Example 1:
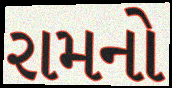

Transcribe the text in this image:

રામનો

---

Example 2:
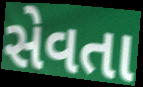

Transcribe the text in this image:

સેવતા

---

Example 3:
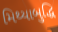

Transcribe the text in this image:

મિથ્યાબુદ્ધિ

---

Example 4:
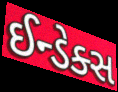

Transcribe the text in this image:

ઈન્ડેક્સ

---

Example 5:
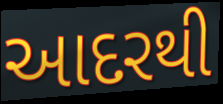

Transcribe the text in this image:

આદરથી